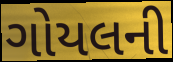
ગોયલની